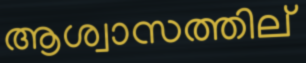
ആശ്വാസത്തില്